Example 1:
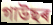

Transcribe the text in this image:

গাউছৰ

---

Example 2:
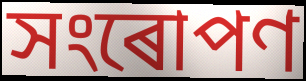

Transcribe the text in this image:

সংৰোপণ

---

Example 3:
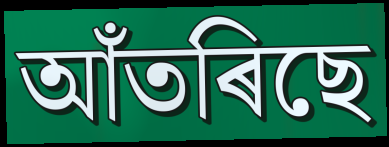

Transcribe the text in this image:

আঁতৰিছে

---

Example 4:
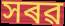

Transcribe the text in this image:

সৰৱ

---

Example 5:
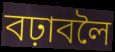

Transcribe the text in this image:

বঢ়াবলৈ